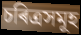
চৰিত্ৰসমূহ